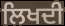
ਲਿਖਦੀ